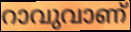
റാവുവാണ്